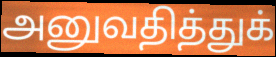
அனுவதித்துக்